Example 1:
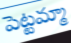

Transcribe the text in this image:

పెట్టమ్మా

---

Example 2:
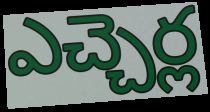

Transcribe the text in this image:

ఎచ్చెర్ల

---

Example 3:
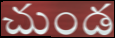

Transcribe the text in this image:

చుండ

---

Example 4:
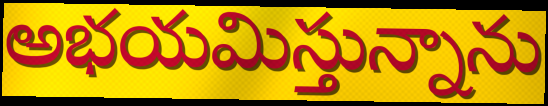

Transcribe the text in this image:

అభయమిస్తున్నాను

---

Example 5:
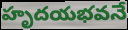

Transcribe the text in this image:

హృదయభవనే